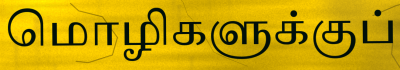
மொழிகளுக்குப்